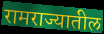
रामराज्यातील